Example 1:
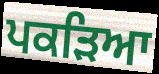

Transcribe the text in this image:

ਪਕੜਿਆ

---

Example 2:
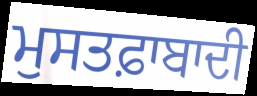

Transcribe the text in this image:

ਮੁਸਤਫ਼ਾਬਾਦੀ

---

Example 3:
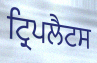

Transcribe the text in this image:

ਟ੍ਰਿਪਲੈਟਸ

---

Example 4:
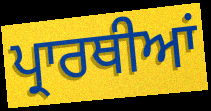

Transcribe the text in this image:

ਪ੍ਰਾਰਥੀਆਂ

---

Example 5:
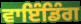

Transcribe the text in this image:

ਵਾਇੰਡਿੰਗ